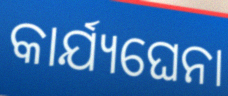
କାର୍ଯ୍ୟଘେନା